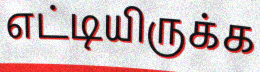
எட்டியிருக்க